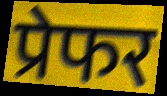
प्रेफर